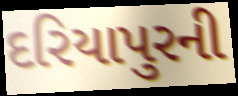
દરિયાપુરની